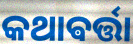
କଥାଵର୍ତ୍ତା